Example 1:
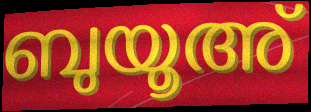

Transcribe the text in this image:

ബുയൂഅ്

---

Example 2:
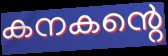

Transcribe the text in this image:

കനകന്റെ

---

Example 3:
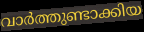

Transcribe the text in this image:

വാർത്തുണ്ടാക്കിയ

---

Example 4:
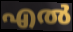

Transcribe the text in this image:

എൽ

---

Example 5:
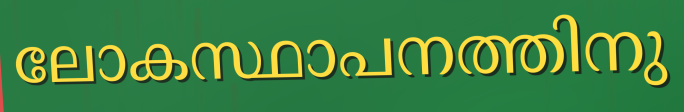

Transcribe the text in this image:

ലോകസ്ഥാപനത്തിനു